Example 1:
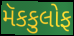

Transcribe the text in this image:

મૅકકુલોફ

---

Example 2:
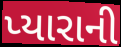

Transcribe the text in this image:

પ્યારાની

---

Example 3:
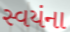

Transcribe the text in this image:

સ્વયંના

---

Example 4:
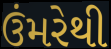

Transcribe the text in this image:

ઉંમરેથી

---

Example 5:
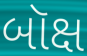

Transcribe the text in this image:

બૉક્ષ